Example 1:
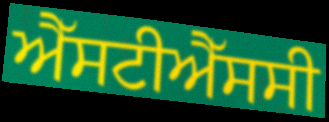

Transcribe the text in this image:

ਐੱਸਟੀਐੱਸਸੀ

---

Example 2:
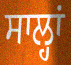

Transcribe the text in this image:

ਸਾਲ੍ਹਾਂ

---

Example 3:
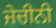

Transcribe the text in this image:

ਜੇਚੀਨੀ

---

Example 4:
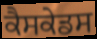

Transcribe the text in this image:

ਕੈਸਕੇਡਸ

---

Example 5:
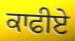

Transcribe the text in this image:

ਕਾਫੀਏ